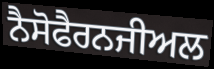
ਨੈਸੋਫੈਰਨਜੀਅਲ